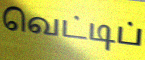
வெட்டிப்